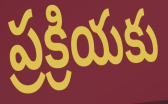
ప్రక్రియకు